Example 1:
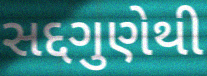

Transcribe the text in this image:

સદ્દગુણેથી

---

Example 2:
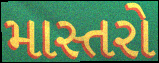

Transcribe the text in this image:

માસ્તરો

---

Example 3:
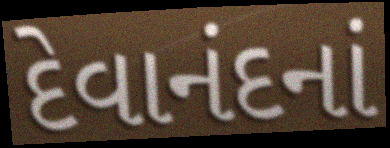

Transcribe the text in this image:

દેવાનંદનાં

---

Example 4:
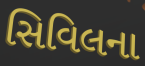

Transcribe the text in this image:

સિવિલના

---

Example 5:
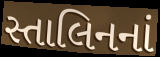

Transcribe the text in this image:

સ્તાલિનનાં